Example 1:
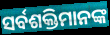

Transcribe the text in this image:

ସର୍ବଶକ୍ତିମାନଙ୍କ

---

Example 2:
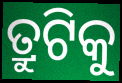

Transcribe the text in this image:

ତ୍ରୁଟିକୁ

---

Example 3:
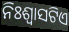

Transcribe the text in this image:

ନିଃଶ୍ୱାସଟିଏ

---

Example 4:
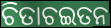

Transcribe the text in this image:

ଚିତାଚଇତନ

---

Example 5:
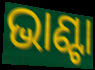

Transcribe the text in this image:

ଭାଣ୍ଟା